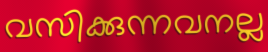
വസിക്കുന്നവനല്ല